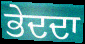
ਭੇਦਦਾ